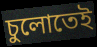
চুলোতেই